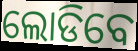
ଲୋଡିବେ